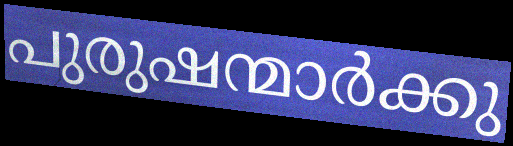
പുരുഷന്മാർക്കു